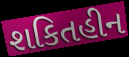
શકિતહીન